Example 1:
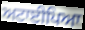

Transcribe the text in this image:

ਅਟਾਈਪਿਆ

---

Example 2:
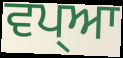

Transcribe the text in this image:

ਵਪ੍ਆ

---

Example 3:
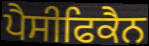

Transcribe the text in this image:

ਪੈਸੀਫਿਕੈਨ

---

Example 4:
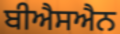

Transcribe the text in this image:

ਬੀਐਸਐਨ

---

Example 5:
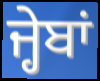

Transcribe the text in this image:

ਜ੍ਹੇਬਾਂ